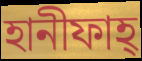
হানীফাহ্